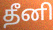
தீனி